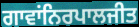
ਗਾਵਾਂਨਿਰਪਾਲਜੀਤ